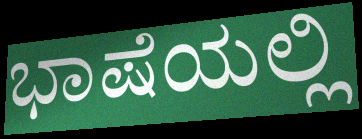
ಭಾಷೆಯಲ್ಲಿ